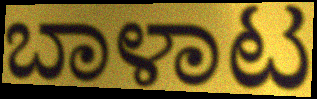
ಬಾಳಾಟ